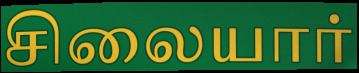
சிலையார்